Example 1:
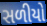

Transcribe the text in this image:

સળીયો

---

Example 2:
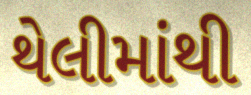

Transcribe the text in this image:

થેલીમાંથી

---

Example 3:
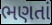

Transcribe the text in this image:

ભણતાં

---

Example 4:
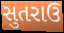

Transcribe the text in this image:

સુતરાઉ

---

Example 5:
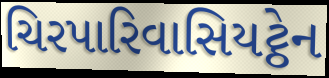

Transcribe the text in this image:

ચિરપારિવાસિયટ્ઠેન